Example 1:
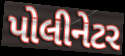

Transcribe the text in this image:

પોલીનેટર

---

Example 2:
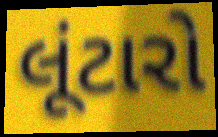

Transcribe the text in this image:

લૂંટારો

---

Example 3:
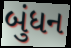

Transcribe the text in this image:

બુંધન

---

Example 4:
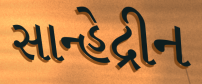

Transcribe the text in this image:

સાન્હેદ્રીન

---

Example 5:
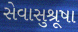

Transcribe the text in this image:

સેવાસુશ્રૂષા